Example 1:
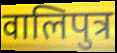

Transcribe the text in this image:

वालिपुत्र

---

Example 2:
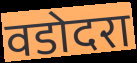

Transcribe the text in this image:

वडोदरा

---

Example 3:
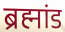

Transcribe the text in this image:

ब्रह्मांड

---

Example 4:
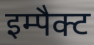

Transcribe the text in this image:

इम्पैक्ट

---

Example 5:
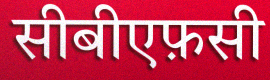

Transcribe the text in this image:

सीबीएफ़सी